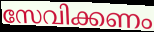
സേവിക്കണം